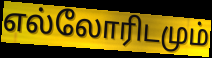
எல்லோரிடமும்